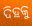
ଦିହକୁ